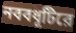
নববধূটিরে